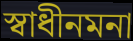
স্বাধীনমনা